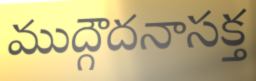
ముద్గౌదనాసక్త